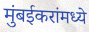
मुंबईकरांमध्ये